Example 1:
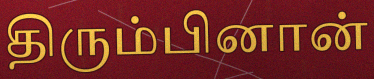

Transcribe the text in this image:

திரும்பினான்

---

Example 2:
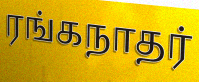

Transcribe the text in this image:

ரங்கநாதர்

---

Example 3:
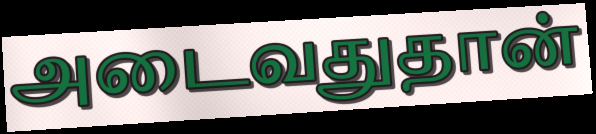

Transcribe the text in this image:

அடைவதுதான்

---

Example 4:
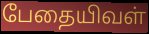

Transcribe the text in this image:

பேதையிவள்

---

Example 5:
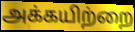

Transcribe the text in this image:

அக்கயிற்றை